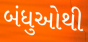
બંધુઓથી